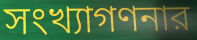
সংখ্যাগণনার